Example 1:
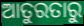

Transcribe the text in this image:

ଆତୁରତାରୁ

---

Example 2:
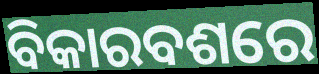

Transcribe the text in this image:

ବିକାରବଶରେ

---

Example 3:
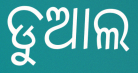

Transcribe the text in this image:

ଡୁଆଲ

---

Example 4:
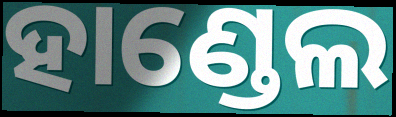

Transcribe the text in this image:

ହାଣ୍ଡେଲ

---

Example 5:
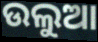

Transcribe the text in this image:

ଉଲୁଆ